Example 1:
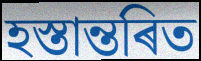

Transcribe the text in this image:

হস্তান্তৰিত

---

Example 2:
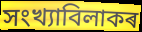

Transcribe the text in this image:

সংখ্যাবিলাকৰ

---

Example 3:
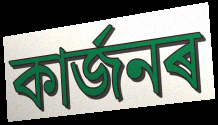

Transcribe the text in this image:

কাৰ্জনৰ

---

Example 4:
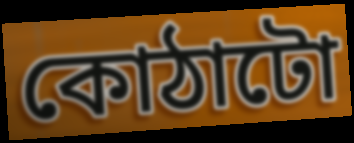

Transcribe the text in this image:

কোঠাটো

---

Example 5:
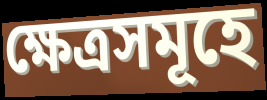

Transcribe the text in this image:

ক্ষেত্ৰসমূহে